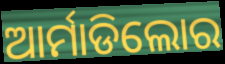
ଆର୍ମାଡିଲୋର